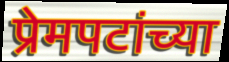
प्रेमपटांच्या